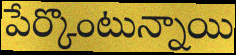
పేర్కొంటున్నాయి